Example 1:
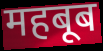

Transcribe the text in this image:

महबूब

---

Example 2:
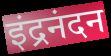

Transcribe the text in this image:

इंद्रनंदन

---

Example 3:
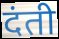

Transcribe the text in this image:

दंती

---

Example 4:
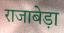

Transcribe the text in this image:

राजाबेड़ा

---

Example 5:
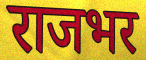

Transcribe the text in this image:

राजभर